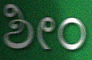
ಶೀಂ